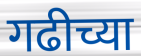
गढीच्या